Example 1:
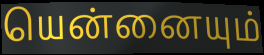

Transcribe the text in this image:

யென்னையும்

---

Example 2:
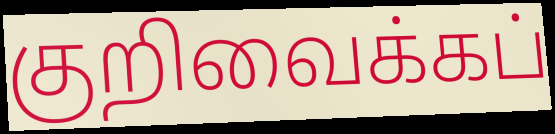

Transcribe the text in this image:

குறிவைக்கப்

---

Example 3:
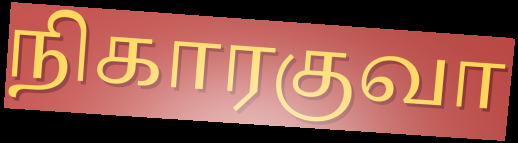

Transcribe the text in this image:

நிகாரகுவா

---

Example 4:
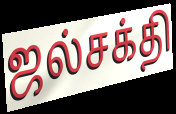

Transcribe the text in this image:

ஜல்சக்தி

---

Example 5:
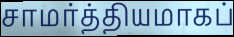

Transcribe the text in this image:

சாமர்த்தியமாகப்